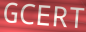
GCERT